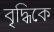
বৃদ্ধিকে